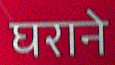
घराने